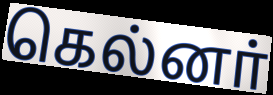
கெல்னர்